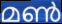
മൺ